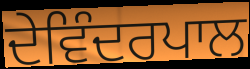
ਦੇਵਿੰਦਰਪਾਲ